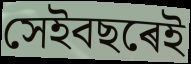
সেইবছৰেই